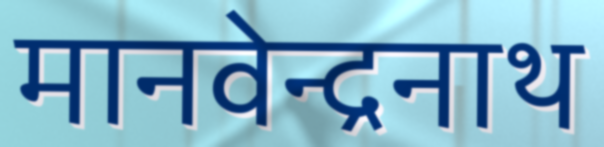
मानवेन्द्रनाथ